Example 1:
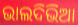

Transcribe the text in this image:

ଭାଲଦିଭିଆ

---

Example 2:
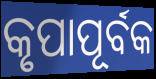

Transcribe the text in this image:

କୃପାପୂର୍ବକ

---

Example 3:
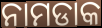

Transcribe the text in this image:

ନାମଡାକ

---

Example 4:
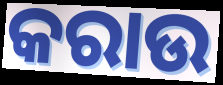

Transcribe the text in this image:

କରାଉ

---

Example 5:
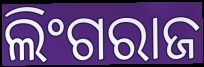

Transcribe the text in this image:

ଲିଂଗରାଜ